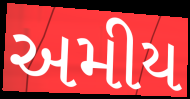
અમીય